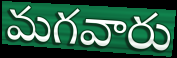
మగవారు